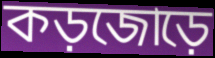
কড়জোড়ে